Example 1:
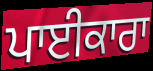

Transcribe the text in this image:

ਪਾਈਕਾਰਾ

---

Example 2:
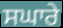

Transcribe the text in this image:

ਸਘਾਰੇ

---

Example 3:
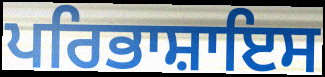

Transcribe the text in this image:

ਪਰਿਭਾਸ਼ਾਇਸ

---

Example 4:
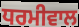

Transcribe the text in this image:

ਧਰਮੀਵਾਲ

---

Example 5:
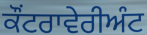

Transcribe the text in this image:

ਕੌਂਟਰਾਵੇਰੀਅੰਟ